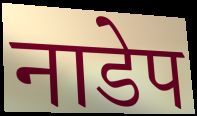
नाडेप